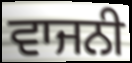
ਵਾਜਨੀ